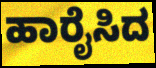
ಹಾರೈಸಿದ